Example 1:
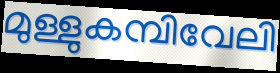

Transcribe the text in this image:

മുള്ളുകമ്പിവേലി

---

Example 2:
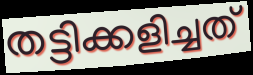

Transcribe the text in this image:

തട്ടിക്കളിച്ചത്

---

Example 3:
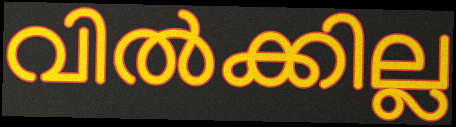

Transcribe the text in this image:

വിൽക്കില്ല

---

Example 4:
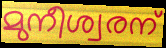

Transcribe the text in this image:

മുനീശ്വരന്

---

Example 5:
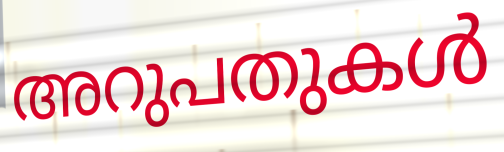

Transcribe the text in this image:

അറുപതുകൾ